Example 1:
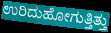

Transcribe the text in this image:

ಉರಿದುಹೋಗುತ್ತಿತ್ತು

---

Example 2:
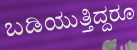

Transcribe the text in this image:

ಬಡಿಯುತ್ತಿದ್ದರೂ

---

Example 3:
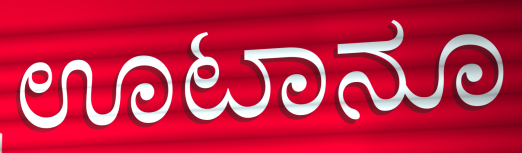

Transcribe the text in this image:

ಊಟಾನೂ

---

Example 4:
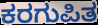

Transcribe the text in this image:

ಕರಗುಪಿತ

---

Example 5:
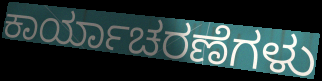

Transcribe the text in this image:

ಕಾರ್ಯಾಚರಣೆಗಳು